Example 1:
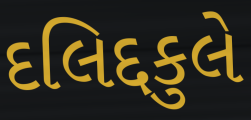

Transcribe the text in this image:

દલિદ્દકુલે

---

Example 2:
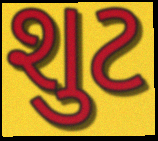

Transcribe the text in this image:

શુટ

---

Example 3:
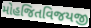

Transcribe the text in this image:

મોહજિતવિજયજી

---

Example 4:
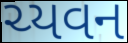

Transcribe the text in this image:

ચ્યવન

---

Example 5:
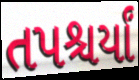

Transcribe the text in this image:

તપશ્ચર્યાં